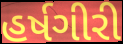
હર્ષગીરી